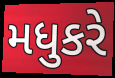
મધુકરે